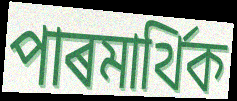
পাৰমাৰ্থিক